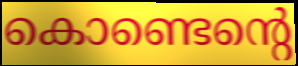
കൊണ്ടെന്റെ